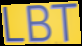
LBT